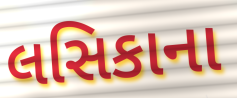
લસિકાના